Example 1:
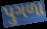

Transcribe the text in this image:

પુગળા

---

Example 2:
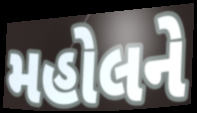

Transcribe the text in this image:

મહોલને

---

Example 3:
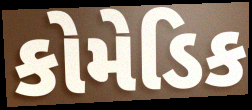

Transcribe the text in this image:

કોમેડિક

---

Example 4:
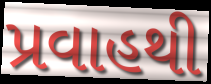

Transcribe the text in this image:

પ્રવાહથી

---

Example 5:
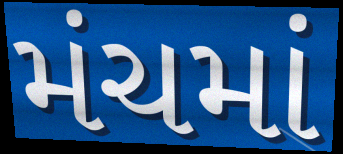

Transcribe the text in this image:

મંચમાં